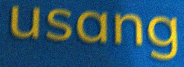
usang